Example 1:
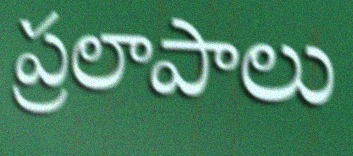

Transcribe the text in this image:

ప్రలాపాలు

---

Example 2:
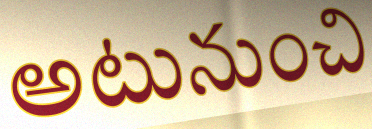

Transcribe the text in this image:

అటునుంచి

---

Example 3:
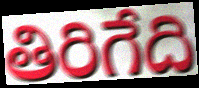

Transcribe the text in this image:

తిరిగేది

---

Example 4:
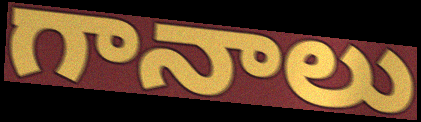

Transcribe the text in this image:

గానాలు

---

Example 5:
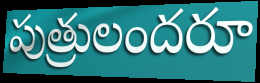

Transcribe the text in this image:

పుత్రులందరూ